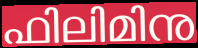
ഫിലിമിനു